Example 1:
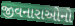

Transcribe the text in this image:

જીવનારાઓનો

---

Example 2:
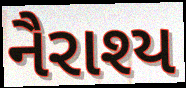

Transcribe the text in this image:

નૈરાશ્ય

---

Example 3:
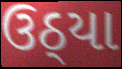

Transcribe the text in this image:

ઉઠ્યા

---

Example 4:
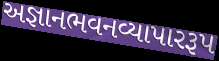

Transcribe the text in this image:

અજ્ઞાનભવનવ્યાપારરૂપ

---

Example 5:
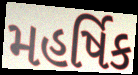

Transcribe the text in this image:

મહર્ષિક